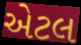
એટલ